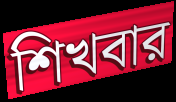
শিখবার